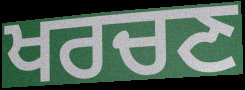
ਖਰਚਣ